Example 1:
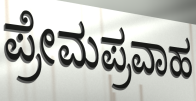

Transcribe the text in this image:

ಪ್ರೇಮಪ್ರವಾಹ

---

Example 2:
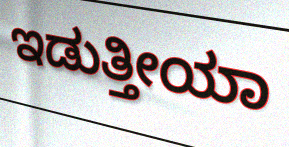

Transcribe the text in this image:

ಇಡುತ್ತೀಯಾ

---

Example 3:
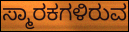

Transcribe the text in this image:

ಸ್ಮಾರಕಗಳಿರುವ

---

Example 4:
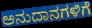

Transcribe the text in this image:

ಅನುದಾನಗಳಿಗೆ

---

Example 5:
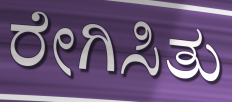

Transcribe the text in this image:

ರೇಗಿಸಿತು